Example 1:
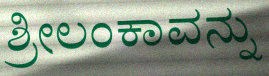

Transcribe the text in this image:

ಶ್ರೀಲಂಕಾವನ್ನು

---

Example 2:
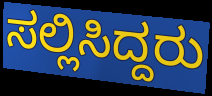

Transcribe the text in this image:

ಸಲ್ಲಿಸಿದ್ದರು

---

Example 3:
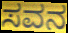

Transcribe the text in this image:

ಸವನ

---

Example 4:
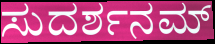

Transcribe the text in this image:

ಸುದರ್ಶನಮ್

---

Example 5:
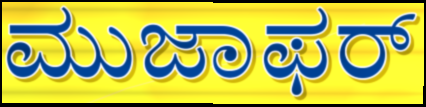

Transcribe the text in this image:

ಮುಜಾಫರ್